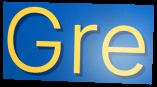
Gre